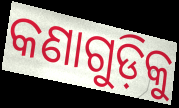
କଣାଗୁଡ଼ିକୁ